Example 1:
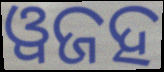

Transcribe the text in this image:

ୱଜହ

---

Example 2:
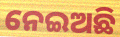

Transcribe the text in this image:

ନେଇଅଛି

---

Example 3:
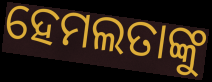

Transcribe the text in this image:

ହେମଲତାଙ୍କୁ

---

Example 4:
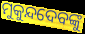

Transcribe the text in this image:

ମୁକୁନ୍ଦଦେବଙ୍କୁ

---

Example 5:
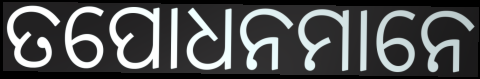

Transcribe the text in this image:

ତପୋଧନମାନେ